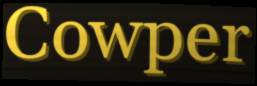
Cowper